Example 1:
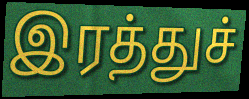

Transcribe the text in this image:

இரத்துச்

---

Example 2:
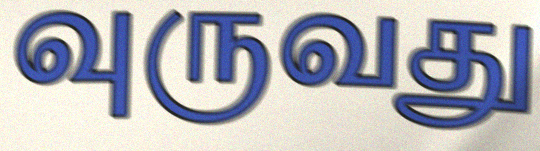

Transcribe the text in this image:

வுருவது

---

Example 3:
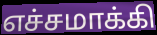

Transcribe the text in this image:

எச்சமாக்கி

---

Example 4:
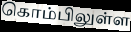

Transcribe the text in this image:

கொம்பிலுள்ள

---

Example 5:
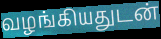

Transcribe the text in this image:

வழங்கியதுடன்